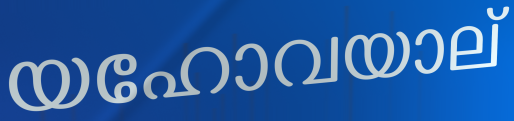
യഹോവയാല്